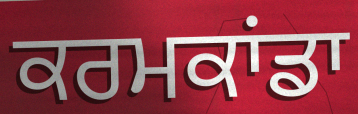
ਕਰਮਕਾਂਡਾ